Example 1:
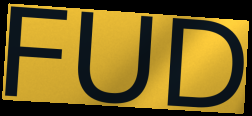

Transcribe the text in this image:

FUD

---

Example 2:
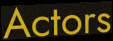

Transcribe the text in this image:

Actors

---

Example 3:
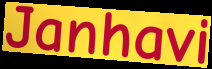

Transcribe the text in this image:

Janhavi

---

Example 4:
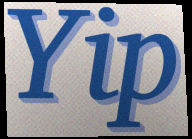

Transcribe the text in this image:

Yip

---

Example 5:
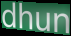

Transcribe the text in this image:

dhun